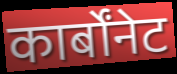
कार्बोंनेट